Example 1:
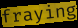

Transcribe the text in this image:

fraying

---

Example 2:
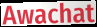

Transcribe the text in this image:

Awachat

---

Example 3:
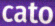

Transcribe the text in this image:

cato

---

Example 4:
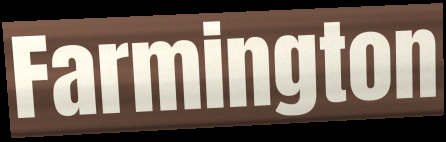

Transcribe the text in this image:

Farmington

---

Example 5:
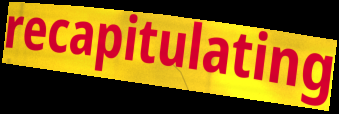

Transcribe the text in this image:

recapitulating